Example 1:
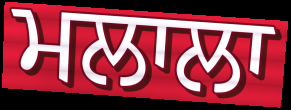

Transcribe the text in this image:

ਮਲਾਲਾ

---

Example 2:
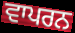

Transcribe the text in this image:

ਵਾਪਰਨ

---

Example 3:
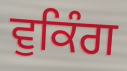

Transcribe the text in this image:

ਵੁਕਿੰਗ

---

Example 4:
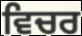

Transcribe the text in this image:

ਵਿਚਰ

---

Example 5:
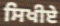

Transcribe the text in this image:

ਸਿਖੀਏ